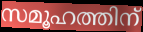
സമൂഹത്തിന്